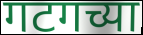
गटगच्या